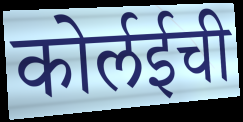
कोर्लईची